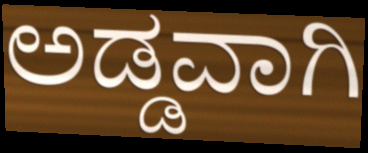
ಅಡ್ಡವಾಗಿ